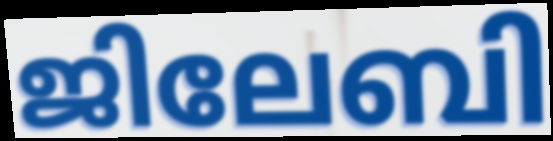
ജിലേബി